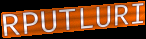
RPUTLURI